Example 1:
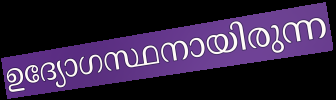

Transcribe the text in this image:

ഉദ്യോഗസ്ഥനായിരുന്ന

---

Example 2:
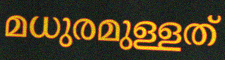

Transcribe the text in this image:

മധുരമുള്ളത്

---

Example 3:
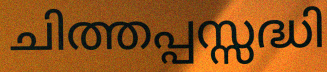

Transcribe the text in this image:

ചിത്തപ്പസ്സദ്ധി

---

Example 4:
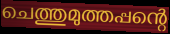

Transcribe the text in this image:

ചെത്തുമുത്തപ്പന്റെ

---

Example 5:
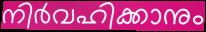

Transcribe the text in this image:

നിർവഹിക്കാനും